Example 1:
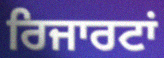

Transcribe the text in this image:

ਰਿਜਾਰਟਾਂ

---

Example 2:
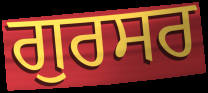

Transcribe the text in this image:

ਗੁਰਸਰ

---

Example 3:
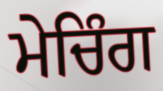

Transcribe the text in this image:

ਮੇਚਿੰਗ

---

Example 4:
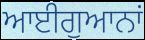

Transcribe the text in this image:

ਆਈਗੁਆਨਾਂ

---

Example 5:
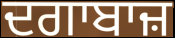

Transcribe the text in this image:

ਦਗਾਬਾਜ਼